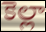
కెల్లా